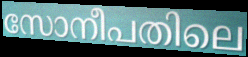
സോനീപതിലെ